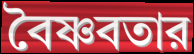
বৈষ্ণবতার